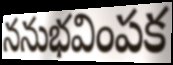
ననుభవింపక